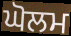
ਘੋਲਮ